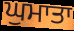
ਘੁਮਾਤਾ